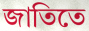
জাতিতে